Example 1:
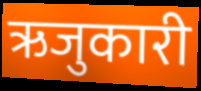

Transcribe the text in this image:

ऋजुकारी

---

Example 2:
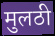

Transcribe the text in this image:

मुलठी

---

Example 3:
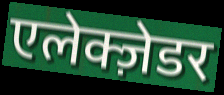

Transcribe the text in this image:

एलेक्ज़ेडर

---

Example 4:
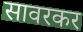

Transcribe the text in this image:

सावरकर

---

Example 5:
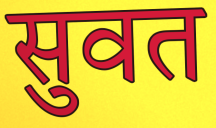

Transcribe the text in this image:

सुवत